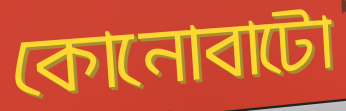
কোনোবাটো